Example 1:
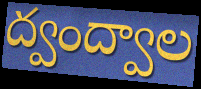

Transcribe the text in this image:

ద్వంద్వాల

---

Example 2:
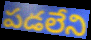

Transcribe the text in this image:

పడలేని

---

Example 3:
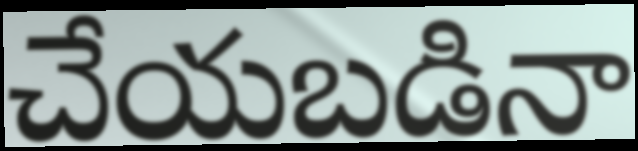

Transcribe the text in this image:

చేయబడినా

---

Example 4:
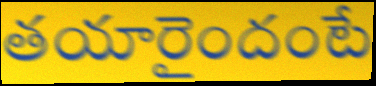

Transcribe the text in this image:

తయారైందంటే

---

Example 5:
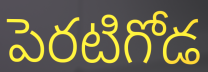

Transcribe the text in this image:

పెరటిగోడ